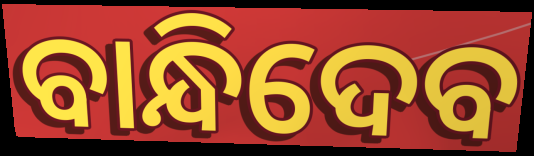
ବାନ୍ଧିଦେବ